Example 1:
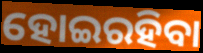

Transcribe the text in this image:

ହୋଇରହିବା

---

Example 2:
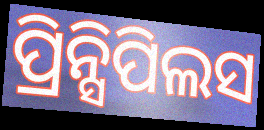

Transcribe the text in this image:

ପ୍ରିନ୍ସିପିଲସ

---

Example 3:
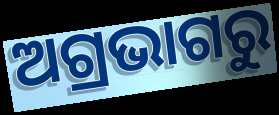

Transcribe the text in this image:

ଅଗ୍ରଭାଗରୁ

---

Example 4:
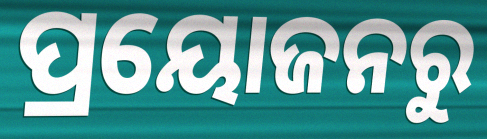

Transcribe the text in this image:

ପ୍ରୟୋଜନରୁ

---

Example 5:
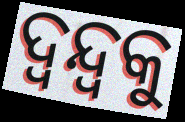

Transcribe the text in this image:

ଦ୍ୱନ୍ଦ୍ୱକୁ